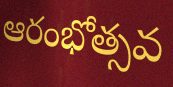
ఆరంభోత్సవ